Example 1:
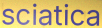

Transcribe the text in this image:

sciatica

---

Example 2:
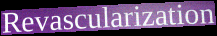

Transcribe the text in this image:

Revascularization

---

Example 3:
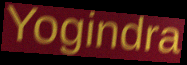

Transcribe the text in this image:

Yogindra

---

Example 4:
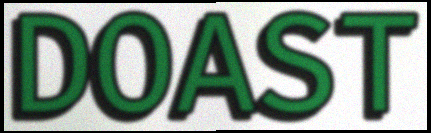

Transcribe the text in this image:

DOAST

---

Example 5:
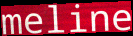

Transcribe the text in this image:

meline